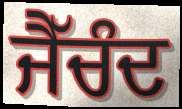
ਜੈੱਚੰਦ